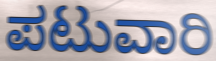
ಪಟುವಾರಿ